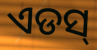
ଏଡସ୍